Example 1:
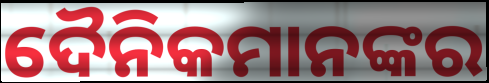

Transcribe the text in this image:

ଦୈନିକମାନଙ୍କର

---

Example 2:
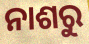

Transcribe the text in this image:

ନାଶରୁ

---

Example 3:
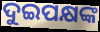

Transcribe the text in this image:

ଦୁଇପକ୍ଷଙ୍କ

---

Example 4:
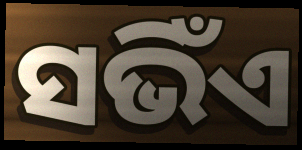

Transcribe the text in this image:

ସଭିଁଏ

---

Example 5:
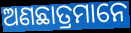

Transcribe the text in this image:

ଅଣଛାତ୍ରମାନେ